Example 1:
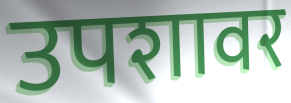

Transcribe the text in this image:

उपशावर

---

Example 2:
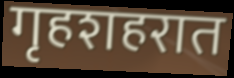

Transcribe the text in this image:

गृहशहरात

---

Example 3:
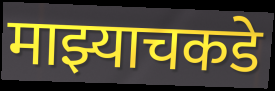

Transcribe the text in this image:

माझ्याचकडे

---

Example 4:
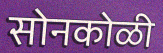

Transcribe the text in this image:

सोनकोळी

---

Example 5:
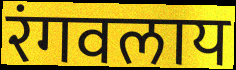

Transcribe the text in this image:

रंगवलाय